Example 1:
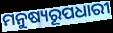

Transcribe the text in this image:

ମନୁଷ୍ୟରୂପଧାରୀ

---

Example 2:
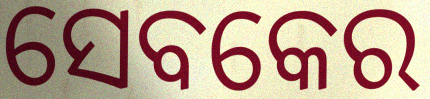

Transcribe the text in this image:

ସେବକେର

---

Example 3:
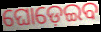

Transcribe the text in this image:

ଘୋଡ଼େଇବ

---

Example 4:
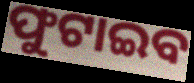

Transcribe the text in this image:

ଫୁଟାଇବ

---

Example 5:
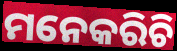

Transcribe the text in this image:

ମନେକରିଚି